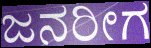
ಜನರೀಗ